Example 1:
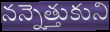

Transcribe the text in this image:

నన్నెత్తుకుని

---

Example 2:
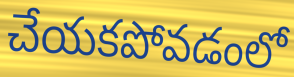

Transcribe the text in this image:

చేయకపోవడంలో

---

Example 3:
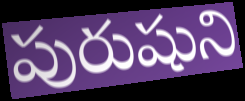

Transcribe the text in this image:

పురుషుని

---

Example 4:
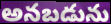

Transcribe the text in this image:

అనబడును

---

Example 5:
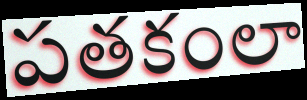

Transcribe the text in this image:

పతకంలా